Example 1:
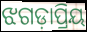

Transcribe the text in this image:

ଝଗଡ଼ାପ୍ରିୟ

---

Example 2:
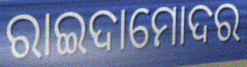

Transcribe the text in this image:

ରାଇଦାମୋଦର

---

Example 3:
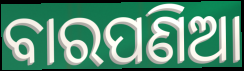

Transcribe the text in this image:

ବାରପଣିଆ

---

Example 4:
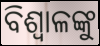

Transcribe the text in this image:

ବିଶ୍ୱାଳଙ୍କୁ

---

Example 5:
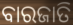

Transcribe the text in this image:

ବାରଜାତି